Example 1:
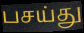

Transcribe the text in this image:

பசய்து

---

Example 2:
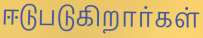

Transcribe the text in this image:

ஈடுபடுகிறார்கள்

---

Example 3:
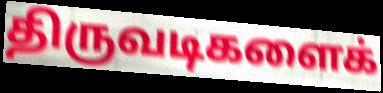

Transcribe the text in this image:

திருவடிகளைக்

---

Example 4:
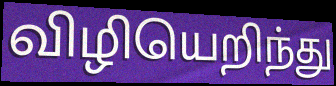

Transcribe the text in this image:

விழியெறிந்து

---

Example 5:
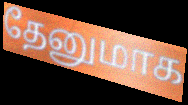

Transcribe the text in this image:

தேனுமாக